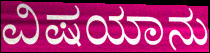
ವಿಷಯಾನು